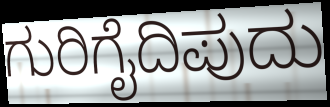
ಗುರಿಗೈದಿಪುದು